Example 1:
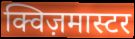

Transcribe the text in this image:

क्विज़मास्टर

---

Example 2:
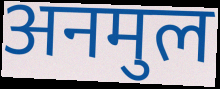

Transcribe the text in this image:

अनमुल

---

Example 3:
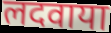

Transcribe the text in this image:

लदवाया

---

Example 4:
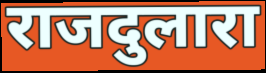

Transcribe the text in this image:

राजदुलारा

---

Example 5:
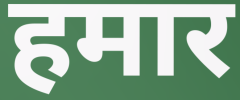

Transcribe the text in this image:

हमार